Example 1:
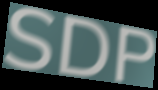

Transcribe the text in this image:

SDP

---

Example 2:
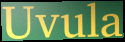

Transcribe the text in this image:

Uvula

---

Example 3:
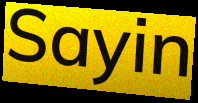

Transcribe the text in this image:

Sayin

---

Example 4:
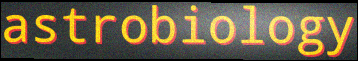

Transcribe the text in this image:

astrobiology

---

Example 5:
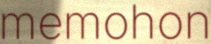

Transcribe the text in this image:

memohon